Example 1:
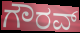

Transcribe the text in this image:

ಗೌರವ್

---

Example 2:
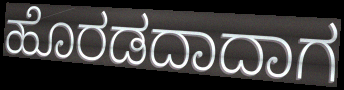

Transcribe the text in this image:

ಹೊರಡದಾದಾಗ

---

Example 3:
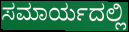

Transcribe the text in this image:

ಸಮಾರ್ಯದಲ್ಲಿ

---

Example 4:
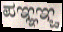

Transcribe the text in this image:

ಪಞ್ಞಞ್ಚ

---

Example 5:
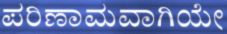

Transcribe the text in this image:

ಪರಿಣಾಮವಾಗಿಯೇ